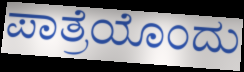
ಪಾತ್ರೆಯೊಂದು